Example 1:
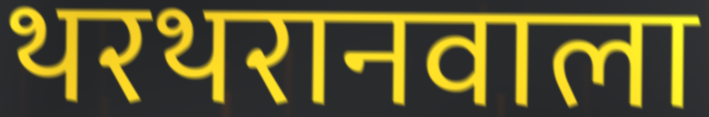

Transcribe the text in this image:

थरथरानवाला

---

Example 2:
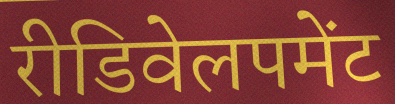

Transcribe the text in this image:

रीडिवेलपमेंट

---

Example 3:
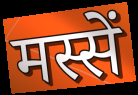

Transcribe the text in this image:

मस्सें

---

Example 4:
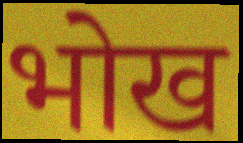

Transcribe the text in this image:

भोख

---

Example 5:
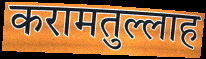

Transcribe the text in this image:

करामतुल्लाह